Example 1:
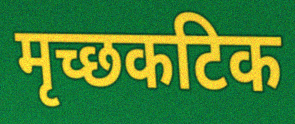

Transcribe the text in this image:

मृच्छकटिक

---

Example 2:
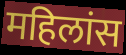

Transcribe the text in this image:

महिलांस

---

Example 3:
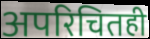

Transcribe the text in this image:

अपरिचितही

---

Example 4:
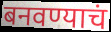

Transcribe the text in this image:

बनवण्याचं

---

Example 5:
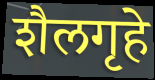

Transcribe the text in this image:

शैलगृहे